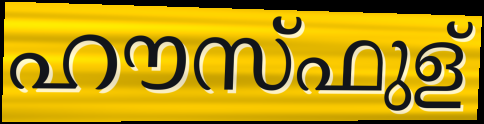
ഹൗസ്ഫുള്